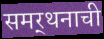
समर्थनाची